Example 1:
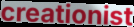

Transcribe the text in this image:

creationist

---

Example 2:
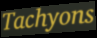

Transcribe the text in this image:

Tachyons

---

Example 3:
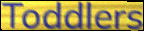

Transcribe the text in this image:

Toddlers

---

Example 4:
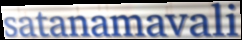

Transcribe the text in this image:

satanamavali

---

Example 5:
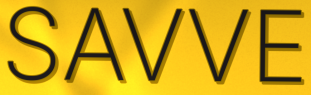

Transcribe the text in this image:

SAVVE